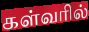
கள்வரில்